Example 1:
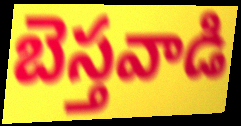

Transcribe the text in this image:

బెస్తవాడి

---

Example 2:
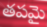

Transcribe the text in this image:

తపమై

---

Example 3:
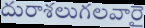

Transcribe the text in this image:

దురాశలుగలవారై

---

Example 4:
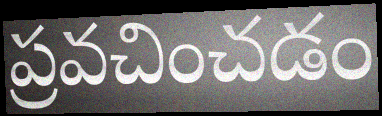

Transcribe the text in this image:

ప్రవచించడం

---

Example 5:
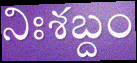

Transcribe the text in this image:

నిఃశబ్దం